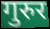
गुरुर